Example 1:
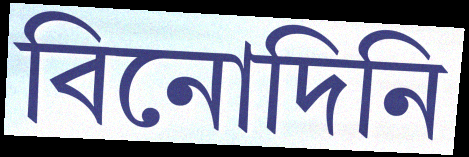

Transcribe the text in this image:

বিনোদিনি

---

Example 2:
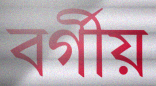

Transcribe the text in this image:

বৰ্গীয়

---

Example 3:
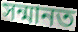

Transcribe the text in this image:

সন্মানত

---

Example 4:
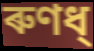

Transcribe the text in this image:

ৰুণধ্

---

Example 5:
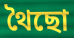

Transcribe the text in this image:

থৈছো